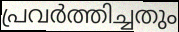
പ്രവർത്തിച്ചതും